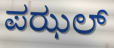
ಪಝಲ್